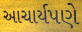
આચાર્યપણે